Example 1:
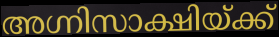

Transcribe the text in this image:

അഗ്നിസാക്ഷിയ്ക്ക്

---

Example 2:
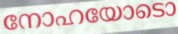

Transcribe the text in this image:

നോഹയോടൊ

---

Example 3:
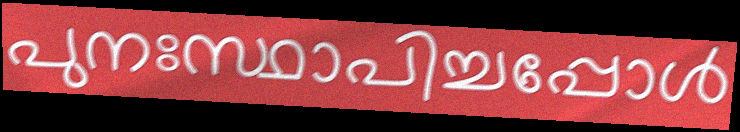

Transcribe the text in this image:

പുനഃസ്ഥാപിച്ചപ്പോൾ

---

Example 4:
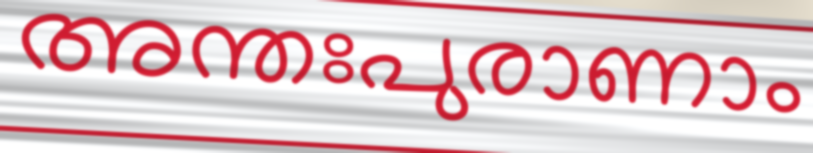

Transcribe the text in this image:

അന്തഃപുരാണാം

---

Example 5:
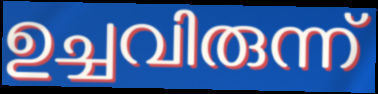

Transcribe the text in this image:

ഉച്ചവിരുന്ന്